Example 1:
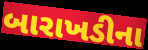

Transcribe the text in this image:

બારાખડીના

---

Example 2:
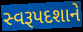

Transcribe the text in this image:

સ્વરૂપદશાને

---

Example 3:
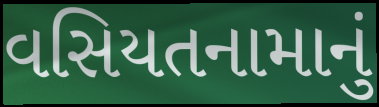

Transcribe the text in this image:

વસિયતનામાનું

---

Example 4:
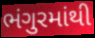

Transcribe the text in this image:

ભંગુરમાંથી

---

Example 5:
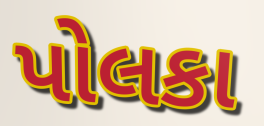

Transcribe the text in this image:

પોલકા